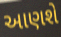
આણશે